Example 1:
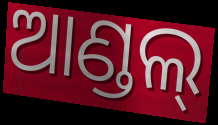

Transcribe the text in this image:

ଆଣ୍ଡଲ୍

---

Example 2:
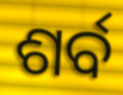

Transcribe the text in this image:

ଶର୍ବ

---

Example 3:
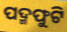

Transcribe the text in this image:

ପଦ୍ମଫୁଟି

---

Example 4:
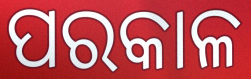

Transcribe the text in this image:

ପରକାଳ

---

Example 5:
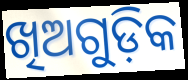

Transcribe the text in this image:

ଖିଅଗୁଡ଼ିକ